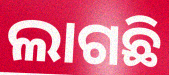
ଲାଗଛି